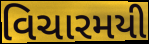
વિચારમયી